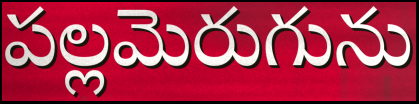
పల్లమెరుగును